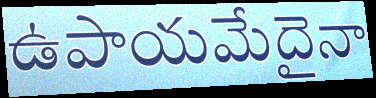
ఉపాయమేదైనా